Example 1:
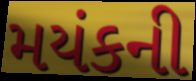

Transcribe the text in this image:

મયંકની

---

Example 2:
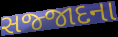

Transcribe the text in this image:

સજ્જાદના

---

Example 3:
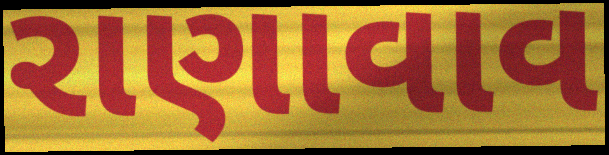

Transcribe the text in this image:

રાણાવાવ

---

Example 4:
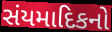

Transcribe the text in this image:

સંયમાદિકનો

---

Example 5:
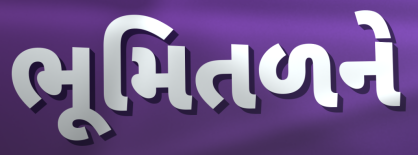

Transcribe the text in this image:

ભૂમિતળને